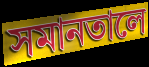
সমানতালে